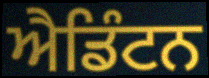
ਐਡਿੰਟਨ